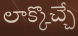
లాక్కొచ్చే